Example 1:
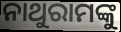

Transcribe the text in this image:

ନାଥୁରାମଙ୍କୁ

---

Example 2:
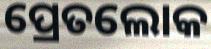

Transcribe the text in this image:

ପ୍ରେତଲୋକ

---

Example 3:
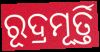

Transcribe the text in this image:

ରୂଦ୍ରମୂର୍ତ୍ତି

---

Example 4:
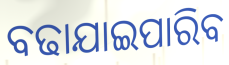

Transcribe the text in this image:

ବଢାଯାଇପାରିବ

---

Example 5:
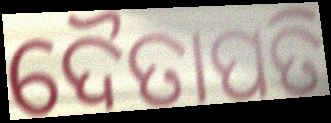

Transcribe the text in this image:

ଦୈତାପତି